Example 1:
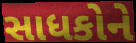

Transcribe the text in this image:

સાધકોને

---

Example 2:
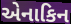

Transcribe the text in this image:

એનાકિન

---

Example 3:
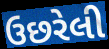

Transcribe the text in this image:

ઉછરેલી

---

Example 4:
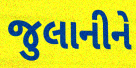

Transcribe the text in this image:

જુલાનીને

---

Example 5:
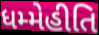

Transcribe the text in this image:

ધમ્મેહીતિ